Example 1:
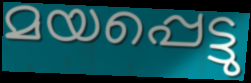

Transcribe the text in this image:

മയപ്പെട്ടു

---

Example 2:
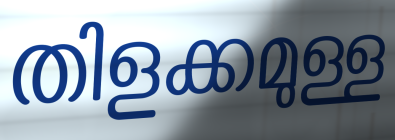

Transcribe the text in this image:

തിളക്കമുള്ള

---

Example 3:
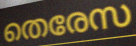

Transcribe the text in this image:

തെരേസ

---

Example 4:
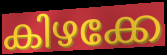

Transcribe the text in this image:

കിഴക്കേ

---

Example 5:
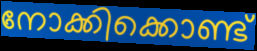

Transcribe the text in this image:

നോക്കിക്കൊണ്ട്